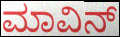
ಮಾವಿನ್